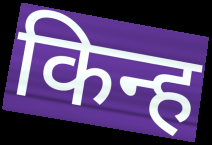
किन्ह